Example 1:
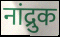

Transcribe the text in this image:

नांद्रुक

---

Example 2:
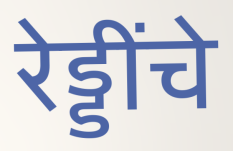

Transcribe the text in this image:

रेड्डींचे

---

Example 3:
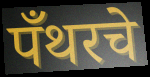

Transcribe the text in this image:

पँथरचे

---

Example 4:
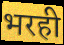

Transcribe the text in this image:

भरही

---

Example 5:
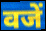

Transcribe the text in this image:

वजें